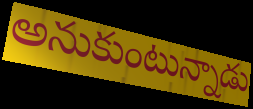
అనుకుంటున్నాడు